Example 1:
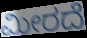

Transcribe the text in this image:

ಮೀರದೆ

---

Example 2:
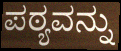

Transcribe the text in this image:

ಪಠ್ಯವನ್ನು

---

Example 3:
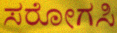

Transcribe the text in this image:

ಸರೋಗಸಿ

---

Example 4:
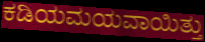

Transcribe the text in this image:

ಕಡಿಯಮಯವಾಯಿತ್ತು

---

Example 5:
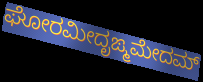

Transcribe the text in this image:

ಘೋರಮೀದೃಙ್ಮಮೇದಮ್